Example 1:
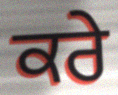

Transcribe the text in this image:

ਕਰੇ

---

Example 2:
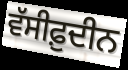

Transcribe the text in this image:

ਵੱਸੀਫ਼ੁਦੀਨ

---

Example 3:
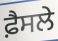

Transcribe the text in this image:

ਫ਼ੈਸਲੇ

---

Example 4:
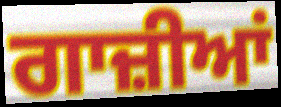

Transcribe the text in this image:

ਗਾਜ਼ੀਆਂ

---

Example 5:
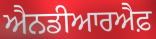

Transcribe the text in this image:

ਐਨਡੀਆਰਐਫ਼